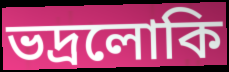
ভদ্রলোকি